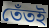
তেঁতই